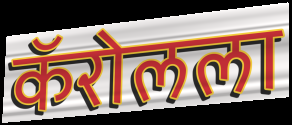
कॅरोलला